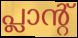
പ്ലാന്റ്